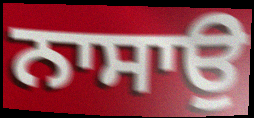
ਨਾਸਾਉ